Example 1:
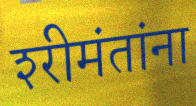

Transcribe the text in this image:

श्रीमंतांना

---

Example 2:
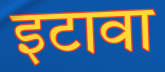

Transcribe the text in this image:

इटावा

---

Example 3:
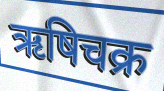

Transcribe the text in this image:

ऋषिचक्र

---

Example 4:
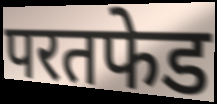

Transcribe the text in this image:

परतफेड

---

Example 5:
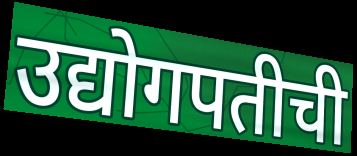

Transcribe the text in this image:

उद्योगपतीची